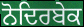
ਨੋਦਿਰਬੇਕ